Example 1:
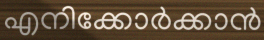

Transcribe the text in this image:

എനിക്കോർക്കാൻ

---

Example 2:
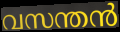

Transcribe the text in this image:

വസന്തൻ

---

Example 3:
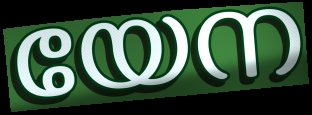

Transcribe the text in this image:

യേന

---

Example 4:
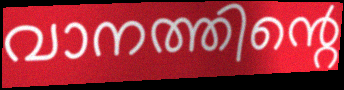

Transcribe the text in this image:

വാനത്തിന്റെ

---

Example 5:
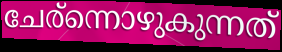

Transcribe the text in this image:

ചേര്ന്നൊഴുകുന്നത്